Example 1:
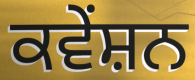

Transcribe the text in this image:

ਕਵੇਂਸ਼ਨ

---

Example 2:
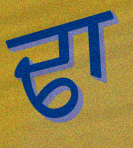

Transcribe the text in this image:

ਢਾ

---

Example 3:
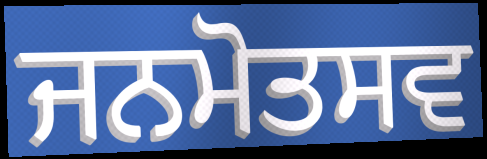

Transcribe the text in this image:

ਜਨਮੋਤਸਵ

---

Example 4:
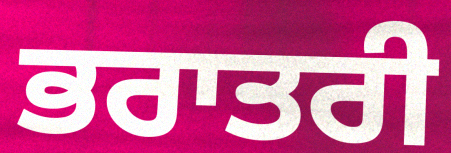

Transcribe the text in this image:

ਭਰਾਤਰੀ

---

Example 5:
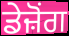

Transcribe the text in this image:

ਡੇਜ਼ੋਂਗ